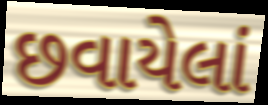
છવાયેલાં